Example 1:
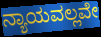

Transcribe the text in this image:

ನ್ಯಾಯವಲ್ಲವೇ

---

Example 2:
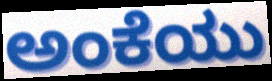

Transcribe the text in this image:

ಅಂಕೆಯು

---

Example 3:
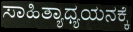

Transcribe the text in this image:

ಸಾಹಿತ್ಯಾಧ್ಯಯನಕ್ಕೆ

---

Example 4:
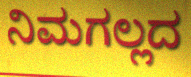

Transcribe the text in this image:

ನಿಮಗಲ್ಲದ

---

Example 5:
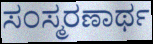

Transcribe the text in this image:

ಸಂಸ್ಮರಣಾರ್ಥ